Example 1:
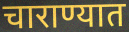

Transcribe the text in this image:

चाराण्यात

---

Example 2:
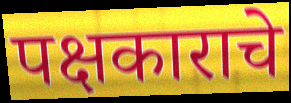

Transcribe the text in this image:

पक्षकाराचे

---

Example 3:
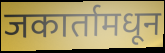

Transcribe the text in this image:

जकार्तामधून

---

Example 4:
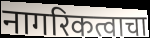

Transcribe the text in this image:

नागरिकत्वाचा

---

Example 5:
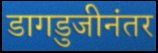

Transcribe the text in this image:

डागडुजीनंतर